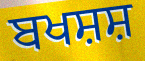
ਬਖਸ਼ਸ਼